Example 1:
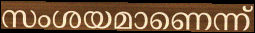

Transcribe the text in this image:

സംശയമാണെന്ന്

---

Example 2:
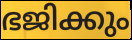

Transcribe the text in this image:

ഭജിക്കും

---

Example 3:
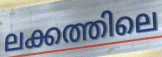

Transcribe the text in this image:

ലക്കത്തിലെ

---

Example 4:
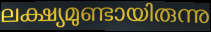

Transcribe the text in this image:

ലക്ഷ്യമുണ്ടായിരുന്നു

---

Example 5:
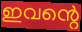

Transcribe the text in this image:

ഇവന്റെ